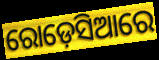
ରୋଡ଼େସିଆରେ